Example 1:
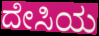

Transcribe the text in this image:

ದೇಸಿಯ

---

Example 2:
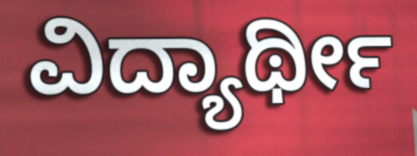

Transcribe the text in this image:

ವಿದ್ಯಾರ್ಥೀ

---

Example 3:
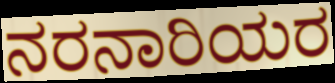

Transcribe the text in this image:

ನರನಾರಿಯರ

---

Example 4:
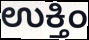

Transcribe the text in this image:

ಉಕ್ತಿಂ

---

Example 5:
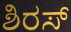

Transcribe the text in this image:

ಶಿರಸ್